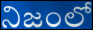
నిజంలో